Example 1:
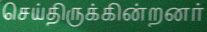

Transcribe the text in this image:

செய்திருக்கின்றனர்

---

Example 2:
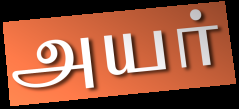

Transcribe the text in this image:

அயர்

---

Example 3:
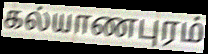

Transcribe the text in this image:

கல்யாணபுரம்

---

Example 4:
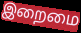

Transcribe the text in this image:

இறைமை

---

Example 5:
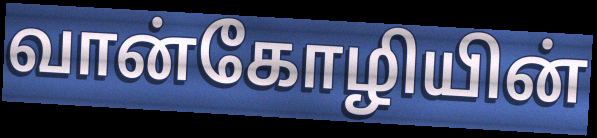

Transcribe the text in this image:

வான்கோழியின்